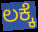
ಲಕ್ಕೆ